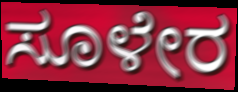
ಸೂಳೇರ